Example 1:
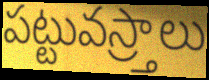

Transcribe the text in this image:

పట్టువస్ర్తాలు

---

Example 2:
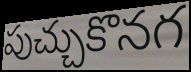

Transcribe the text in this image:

పుచ్చుకొనగ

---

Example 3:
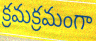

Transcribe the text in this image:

క్రమక్రమంగా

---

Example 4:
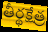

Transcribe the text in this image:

తీర్థక్షేత్ర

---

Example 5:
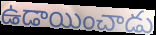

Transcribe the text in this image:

ఉడాయించాడు